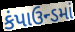
કંપાઉન્ડમાં